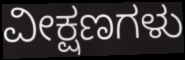
ವೀಕ್ಷಣಗಳು